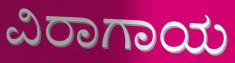
ವಿರಾಗಾಯ